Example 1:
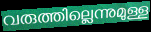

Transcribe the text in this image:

വരുത്തില്ലെന്നുമുള്ള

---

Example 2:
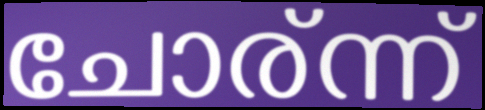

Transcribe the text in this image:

ചോര്ന്ന്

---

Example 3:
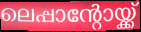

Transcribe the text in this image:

ലെപ്പാന്റോയ്ക്ക്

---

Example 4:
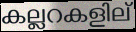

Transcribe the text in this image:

കല്ലറകളില്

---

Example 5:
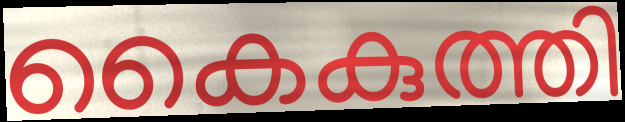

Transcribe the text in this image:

കൈകുത്തി